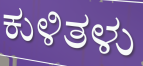
ಕುಳಿತಳು